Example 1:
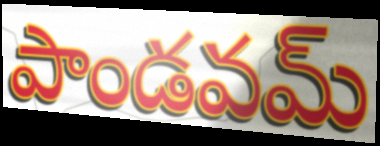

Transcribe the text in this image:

పాండవమ్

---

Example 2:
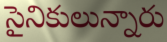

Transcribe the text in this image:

సైనికులున్నారు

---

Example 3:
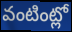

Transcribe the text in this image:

వంటింట్లో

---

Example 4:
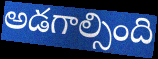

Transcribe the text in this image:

అడగాల్సింది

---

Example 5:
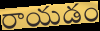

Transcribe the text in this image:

రాయడం